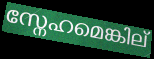
സ്നേഹമെങ്കില്